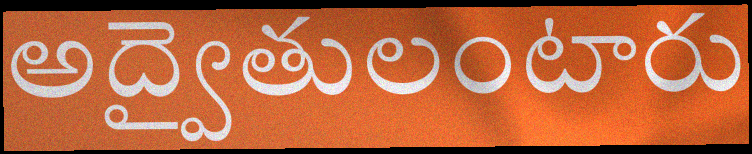
అద్వైతులంటారు